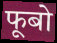
फूबो